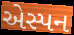
એસ્પન